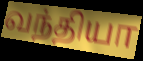
வந்தியா